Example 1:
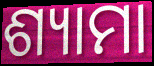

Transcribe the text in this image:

ଶ୍ୟାମା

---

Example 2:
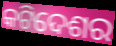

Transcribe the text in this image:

କଟିଦେଶର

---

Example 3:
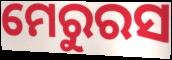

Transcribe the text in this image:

ମେରୁରସ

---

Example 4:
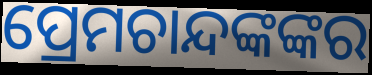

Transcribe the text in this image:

ପ୍ରେମଚାନ୍ଦଙ୍କଙ୍କର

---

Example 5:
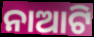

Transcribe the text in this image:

ନାଆଟି